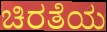
ಚಿರತೆಯ